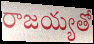
రాజయ్యతో